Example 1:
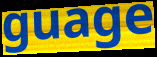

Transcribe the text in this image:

guage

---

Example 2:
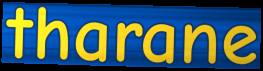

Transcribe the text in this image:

tharane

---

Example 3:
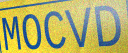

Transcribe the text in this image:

MOCVD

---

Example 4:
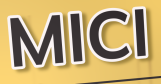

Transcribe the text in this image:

MICI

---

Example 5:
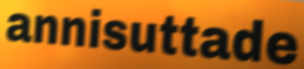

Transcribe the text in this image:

annisuttade